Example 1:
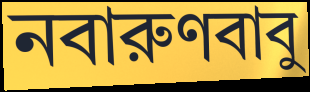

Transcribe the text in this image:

নবারুণবাবু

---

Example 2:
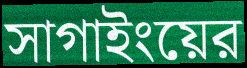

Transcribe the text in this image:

সাগাইংয়ের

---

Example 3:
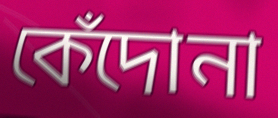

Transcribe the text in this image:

কেঁদোনা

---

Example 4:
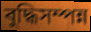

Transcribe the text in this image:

বুদ্ধিসম্পন্ন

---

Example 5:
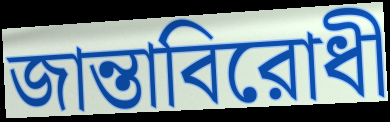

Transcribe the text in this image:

জান্তাবিরোধী